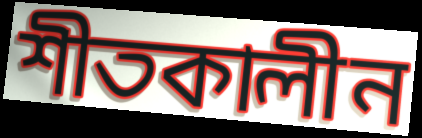
শীতকালীন